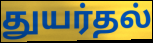
துயர்தல்